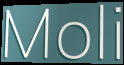
Moli